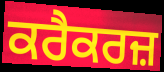
ਕਰੈਕਰਜ਼